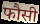
फौसी